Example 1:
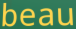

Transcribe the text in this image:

beau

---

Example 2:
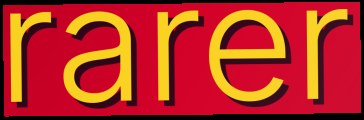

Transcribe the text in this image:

rarer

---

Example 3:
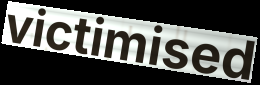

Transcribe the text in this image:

victimised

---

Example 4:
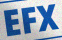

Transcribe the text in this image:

EFX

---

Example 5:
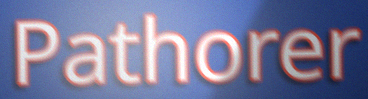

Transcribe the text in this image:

Pathorer